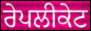
ਰੇਪਲੀਕੇਟ